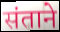
संताने